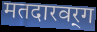
मतदारवर्ग